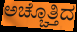
ಅಚ್ಚೊತ್ತಿದ